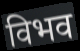
विभव